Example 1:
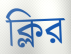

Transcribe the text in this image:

ক্লির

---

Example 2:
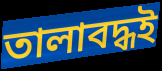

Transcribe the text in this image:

তালাবদ্ধই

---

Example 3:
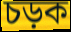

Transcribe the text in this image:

চড়ক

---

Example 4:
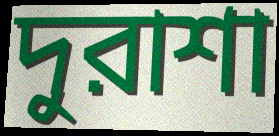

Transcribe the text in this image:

দুরাশা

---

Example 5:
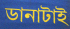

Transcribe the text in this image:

ডানাটাই